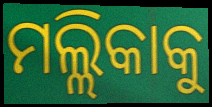
ମଲ୍ଲିକାକୁ